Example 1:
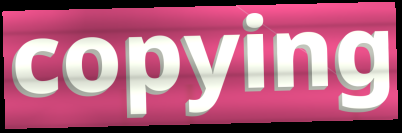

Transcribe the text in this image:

copying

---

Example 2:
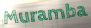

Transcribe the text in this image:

Muramba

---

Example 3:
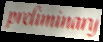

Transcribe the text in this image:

preliminary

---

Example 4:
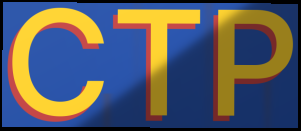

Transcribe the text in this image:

CTP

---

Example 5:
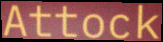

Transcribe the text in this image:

Attock